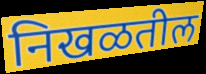
निखळतील